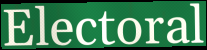
Electoral